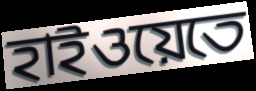
হাইওয়েতে